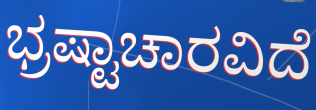
ಭ್ರಷ್ಟಾಚಾರವಿದೆ